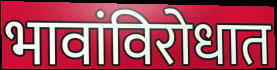
भावांविरोधात